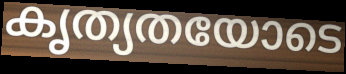
കൃത്യതയോടെ